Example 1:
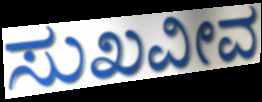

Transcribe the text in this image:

ಸುಖವೀವ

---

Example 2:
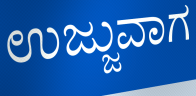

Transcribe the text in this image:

ಉಜ್ಜುವಾಗ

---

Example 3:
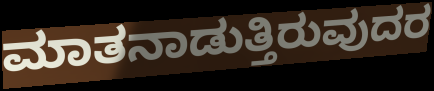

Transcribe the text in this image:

ಮಾತನಾಡುತ್ತಿರುವುದರ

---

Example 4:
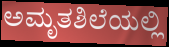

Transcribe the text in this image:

ಅಮೃತಶಿಲೆಯಲ್ಲಿ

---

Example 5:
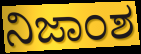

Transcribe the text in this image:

ನಿಜಾಂಶ